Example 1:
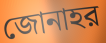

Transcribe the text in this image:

জোনাহর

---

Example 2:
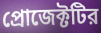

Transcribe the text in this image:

প্রোজেক্টটির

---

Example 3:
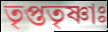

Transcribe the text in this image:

তৃপ্ততৃষ্ণাঃ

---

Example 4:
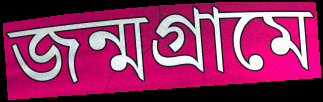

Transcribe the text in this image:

জন্মগ্রামে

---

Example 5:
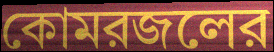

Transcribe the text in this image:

কোমরজলের